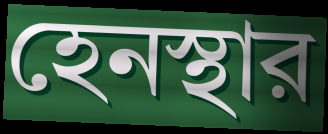
হেনস্থার